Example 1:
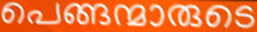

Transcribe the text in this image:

പെങ്ങന്മാരുടെ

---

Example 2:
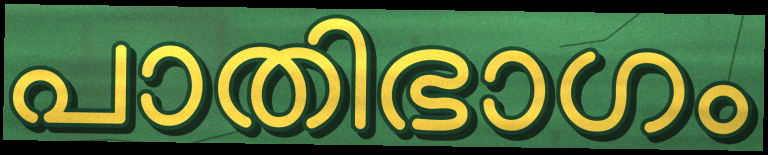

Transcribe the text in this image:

പാതിഭാഗം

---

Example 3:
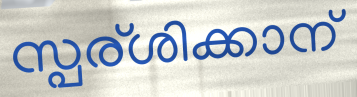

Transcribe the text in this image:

സ്പര്ശിക്കാന്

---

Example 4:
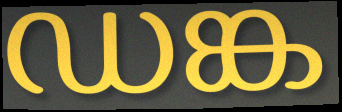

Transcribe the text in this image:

ഡങ്ക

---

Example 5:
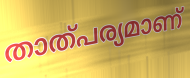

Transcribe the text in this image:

താത്പര്യമാണ്